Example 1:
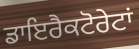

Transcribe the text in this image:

ਡਾਇਰੈਕਟੋਰੇਟਾਂ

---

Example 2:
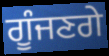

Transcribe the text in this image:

ਗੂੰਜਣਗੇ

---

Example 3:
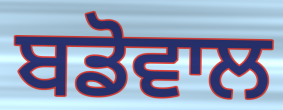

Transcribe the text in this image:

ਬਡੋਵਾਲ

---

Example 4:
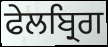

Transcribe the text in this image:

ਫੇਲਬ੍ਰਿਗ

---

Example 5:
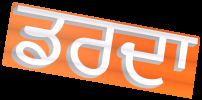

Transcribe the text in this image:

ਡਰਦਾ